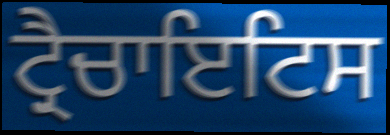
ਟ੍ਰੈਚਾਇਟਿਸ